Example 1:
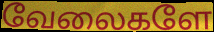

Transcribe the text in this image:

வேலைகளே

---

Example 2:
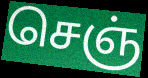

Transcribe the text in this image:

செஞ்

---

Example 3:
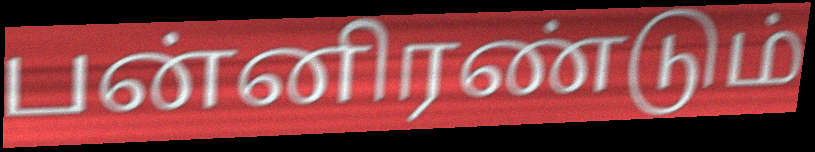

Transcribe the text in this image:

பன்னிரண்டும்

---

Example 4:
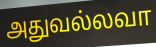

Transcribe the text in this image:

அதுவல்லவா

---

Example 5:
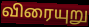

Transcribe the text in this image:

விரையுறு